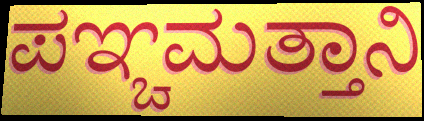
ಪಞ್ಚಮತ್ತಾನಿ